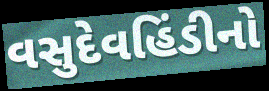
વસુદેવહિંડીનો